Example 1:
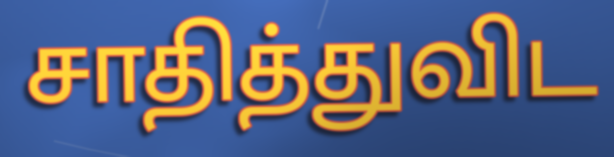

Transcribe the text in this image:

சாதித்துவிட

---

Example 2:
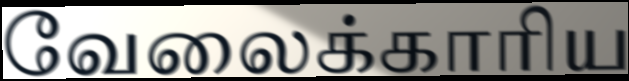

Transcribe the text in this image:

வேலைக்காரிய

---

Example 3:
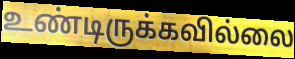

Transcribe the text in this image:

உண்டிருக்கவில்லை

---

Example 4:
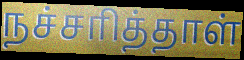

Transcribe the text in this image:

நச்சரித்தாள்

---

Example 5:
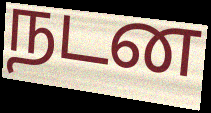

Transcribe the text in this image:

நடன